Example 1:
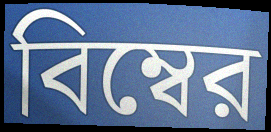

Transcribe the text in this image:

বিম্বের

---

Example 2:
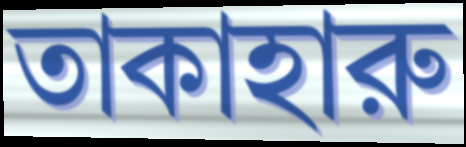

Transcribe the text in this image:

তাকাহারু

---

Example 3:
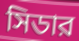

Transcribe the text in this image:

সিডার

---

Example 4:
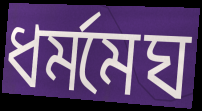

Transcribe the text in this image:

ধর্মমেঘ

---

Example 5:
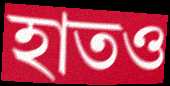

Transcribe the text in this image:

হাতও